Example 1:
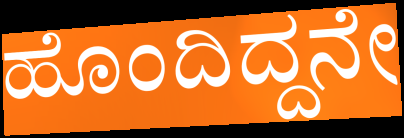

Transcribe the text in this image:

ಹೊಂದಿದ್ದನೇ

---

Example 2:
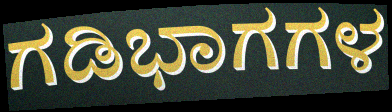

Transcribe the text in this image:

ಗಡಿಭಾಗಗಳ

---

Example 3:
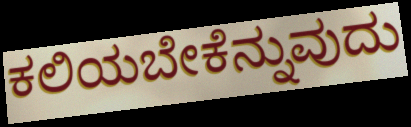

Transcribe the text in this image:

ಕಲಿಯಬೇಕೆನ್ನುವುದು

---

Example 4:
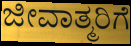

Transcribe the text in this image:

ಜೀವಾತ್ಮರಿಗೆ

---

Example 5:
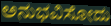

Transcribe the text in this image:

ಅನುಭವಿಸೋದು